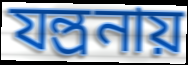
যন্ত্রনায়